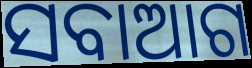
ସବାଆଗ